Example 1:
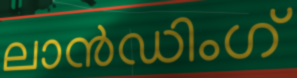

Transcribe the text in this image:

ലാൻഡിംഗ്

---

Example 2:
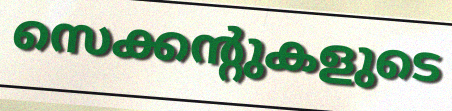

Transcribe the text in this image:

സെക്കന്റുകളുടെ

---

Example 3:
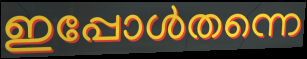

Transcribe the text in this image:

ഇപ്പോൾതന്നെ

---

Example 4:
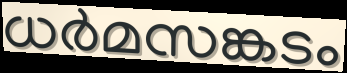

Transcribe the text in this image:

ധർമസങ്കടം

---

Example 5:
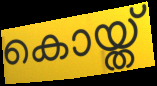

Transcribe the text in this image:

കൊയ്ത്